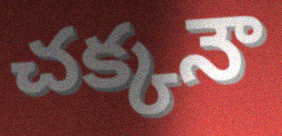
చక్కనౌ